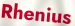
Rhenius